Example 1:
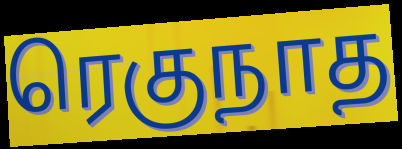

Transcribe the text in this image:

ரெகுநாத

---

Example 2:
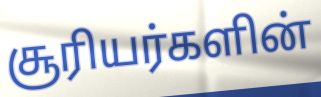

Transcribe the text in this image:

சூரியர்களின்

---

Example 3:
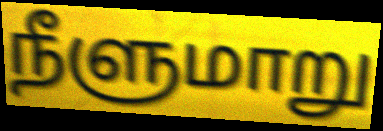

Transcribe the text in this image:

நீளுமாறு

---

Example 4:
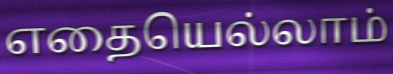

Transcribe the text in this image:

எதையெல்லாம்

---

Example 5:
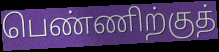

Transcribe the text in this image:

பெண்ணிற்குத்